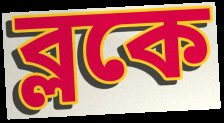
ব্লকে